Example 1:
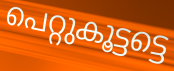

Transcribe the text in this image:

പെറ്റുകൂട്ടട്ടെ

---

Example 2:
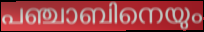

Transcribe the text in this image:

പഞ്ചാബിനെയും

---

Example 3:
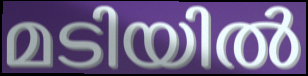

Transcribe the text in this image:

മടിയിൽ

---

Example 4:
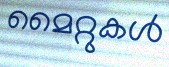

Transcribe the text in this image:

മൈറ്റുകൾ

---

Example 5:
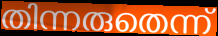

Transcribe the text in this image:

തിന്നരുതെന്ന്